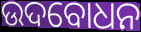
ଉଦବୋଧନ